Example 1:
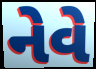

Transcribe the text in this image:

નેવે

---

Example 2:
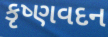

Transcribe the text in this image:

કૃષ્ણવદન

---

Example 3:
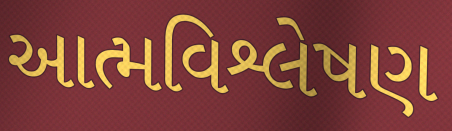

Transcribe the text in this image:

આત્મવિશ્લેષણ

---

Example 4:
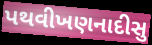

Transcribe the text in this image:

પથવીખણનાદીસુ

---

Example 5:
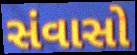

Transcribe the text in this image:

સંવાસો